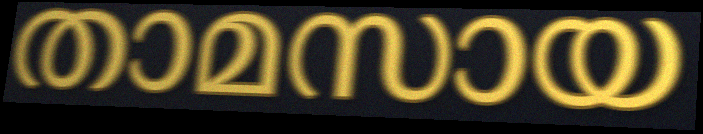
താമസായ